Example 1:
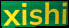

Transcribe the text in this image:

xishi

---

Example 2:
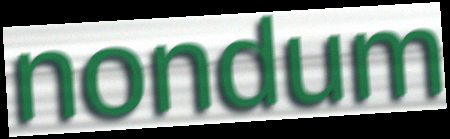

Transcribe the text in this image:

nondum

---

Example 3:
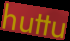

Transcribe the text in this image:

huttu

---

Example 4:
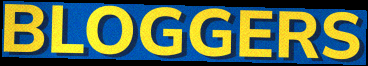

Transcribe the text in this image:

BLOGGERS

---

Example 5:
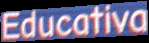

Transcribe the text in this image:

Educativa